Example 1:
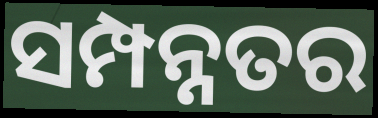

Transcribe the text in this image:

ସମ୍ପନ୍ନତର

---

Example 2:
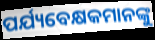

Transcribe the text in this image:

ପର୍ଯ୍ୟବେକ୍ଷକମାନଙ୍କୁ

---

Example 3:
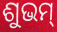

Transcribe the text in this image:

ଶୁଭମ୍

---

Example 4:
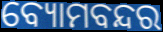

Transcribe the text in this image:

ବ୍ୟୋମବନ୍ଦର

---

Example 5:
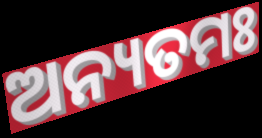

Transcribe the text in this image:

ଅନ୍ୟତମଃ